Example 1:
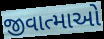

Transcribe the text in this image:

જીવાત્માઓ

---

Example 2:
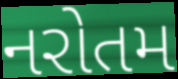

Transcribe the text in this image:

નરોતમ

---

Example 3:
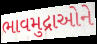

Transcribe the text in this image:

ભાવમુદ્રાઓને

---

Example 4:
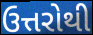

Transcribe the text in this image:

ઉત્તરોથી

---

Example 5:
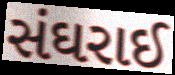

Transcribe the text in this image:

સંઘરાઈ